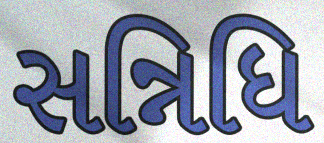
સન્નિધિ